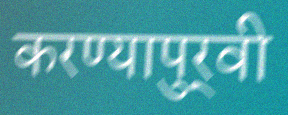
करण्यापुर्वी